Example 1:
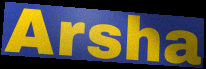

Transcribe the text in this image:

Arsha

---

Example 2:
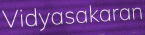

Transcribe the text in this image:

Vidyasakaran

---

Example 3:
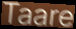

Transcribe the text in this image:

Taare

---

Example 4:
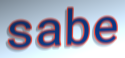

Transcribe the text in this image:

sabe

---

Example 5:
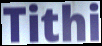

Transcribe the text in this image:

Tithi